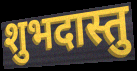
शुभदास्तु